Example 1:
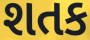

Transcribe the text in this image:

શતક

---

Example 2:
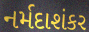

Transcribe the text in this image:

નર્મદાશંકર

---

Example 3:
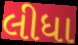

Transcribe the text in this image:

લીધા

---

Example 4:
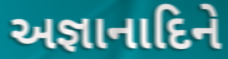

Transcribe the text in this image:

અજ્ઞાનાદિને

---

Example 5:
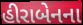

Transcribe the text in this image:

હીરાબેનના